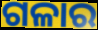
ଗଳାର